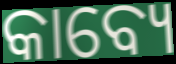
କାବ୍ୟେ